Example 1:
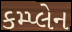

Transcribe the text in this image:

કમ્પ્લેન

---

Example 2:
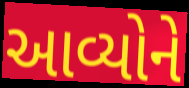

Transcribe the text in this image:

આવ્યોને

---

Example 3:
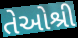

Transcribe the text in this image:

તેઓશ્રી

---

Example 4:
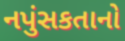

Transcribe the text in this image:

નપુંસકતાનો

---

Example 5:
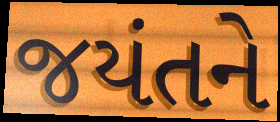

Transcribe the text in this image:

જયંતને